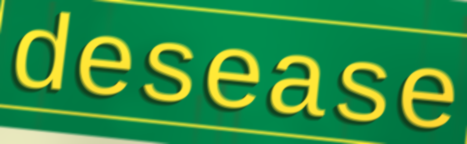
desease